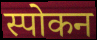
स्पोकन